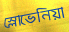
স্লোভেনিয়া